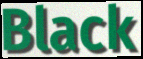
Black